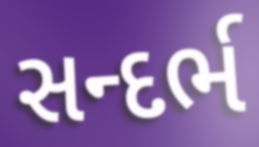
સન્દર્ભ